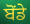
ਬੋਂਡੇ